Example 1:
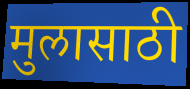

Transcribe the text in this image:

मुलासाठी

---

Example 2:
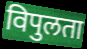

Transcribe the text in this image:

विपुलता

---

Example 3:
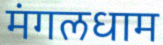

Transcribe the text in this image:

मंगलधाम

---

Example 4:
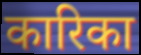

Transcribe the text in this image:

कारिका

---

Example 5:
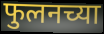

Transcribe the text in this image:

फुलनच्या